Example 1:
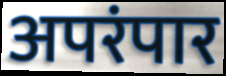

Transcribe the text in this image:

अपरंपार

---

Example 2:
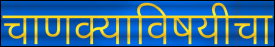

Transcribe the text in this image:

चाणक्याविषयीचा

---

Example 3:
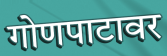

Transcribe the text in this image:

गोणपाटावर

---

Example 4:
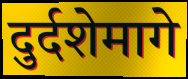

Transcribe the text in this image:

दुर्दशेमागे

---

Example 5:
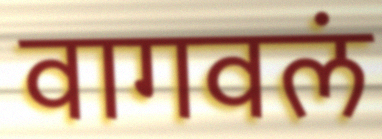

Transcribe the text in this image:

वागवलं